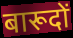
बारूदों